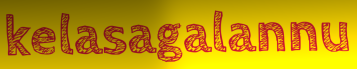
kelasagalannu